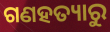
ଗଣହତ୍ୟାରୁ